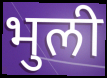
भुली